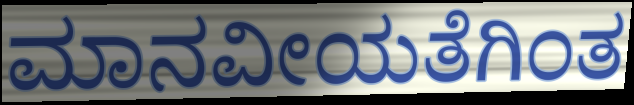
ಮಾನವೀಯತೆಗಿಂತ